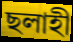
ছলাহী